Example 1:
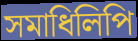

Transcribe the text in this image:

সমাধিলিপি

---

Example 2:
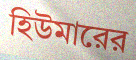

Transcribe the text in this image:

হিউমারের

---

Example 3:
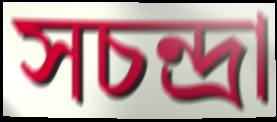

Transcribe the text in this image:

সচন্দ্রা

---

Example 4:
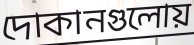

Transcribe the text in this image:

দোকানগুলোয়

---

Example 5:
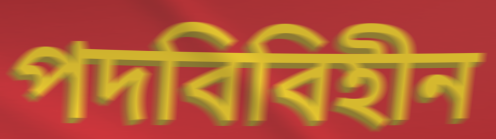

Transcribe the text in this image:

পদবিবিহীন